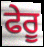
ਫੇਰੂ